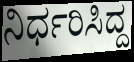
ನಿರ್ಧರಿಸಿದ್ದ